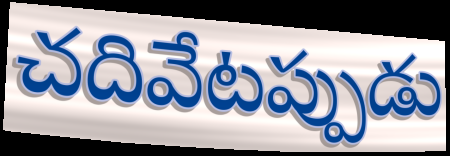
చదివేటప్పుడు